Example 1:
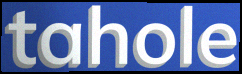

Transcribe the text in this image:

tahole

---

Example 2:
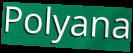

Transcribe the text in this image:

Polyana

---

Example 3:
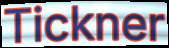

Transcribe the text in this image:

Tickner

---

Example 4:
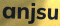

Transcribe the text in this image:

anjsu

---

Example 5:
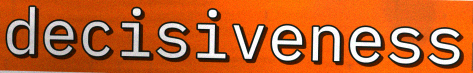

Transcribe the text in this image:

decisiveness